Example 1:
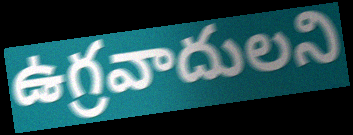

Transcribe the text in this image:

ఉగ్రవాదులని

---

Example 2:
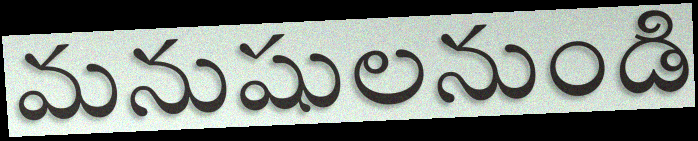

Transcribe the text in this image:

మనుషులనుండి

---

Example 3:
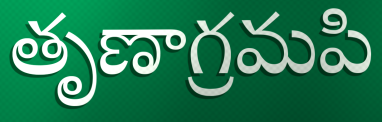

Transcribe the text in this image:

తృణాగ్రమపి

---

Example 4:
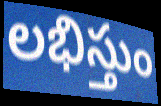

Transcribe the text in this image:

లభిస్తుం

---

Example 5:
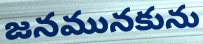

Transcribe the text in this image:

జనమునకును